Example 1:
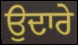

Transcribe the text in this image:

ਉਦਾਰੇ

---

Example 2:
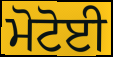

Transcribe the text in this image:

ਮੋਟੋਈ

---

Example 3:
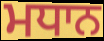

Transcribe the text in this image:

ਮਧਾਨ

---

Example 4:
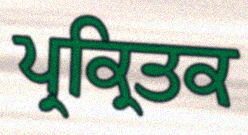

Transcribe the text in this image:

ਪ੍ਰਕ੍ਰਿਤਕ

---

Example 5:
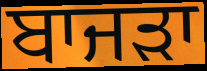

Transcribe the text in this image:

ਬਾਜਡ਼ਾ